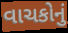
વાચકોનું